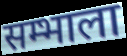
सम्भाला